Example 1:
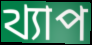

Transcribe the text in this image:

থ্যাপ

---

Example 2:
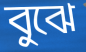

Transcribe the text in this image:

বুঝে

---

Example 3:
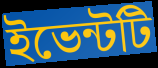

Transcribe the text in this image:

ইভেন্টটি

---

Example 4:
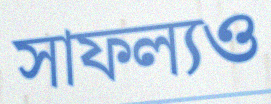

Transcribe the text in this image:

সাফল্যও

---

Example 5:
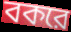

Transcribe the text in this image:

বকরে